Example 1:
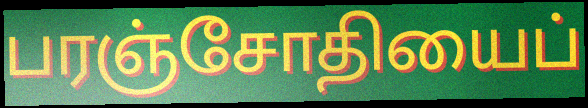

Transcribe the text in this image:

பரஞ்சோதியைப்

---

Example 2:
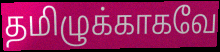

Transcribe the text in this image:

தமிழுக்காகவே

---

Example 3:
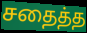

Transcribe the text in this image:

சதைத்த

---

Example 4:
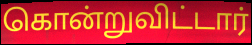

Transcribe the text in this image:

கொன்றுவிட்டார்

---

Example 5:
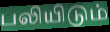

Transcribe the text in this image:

பலியிடும்